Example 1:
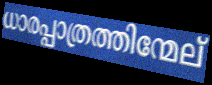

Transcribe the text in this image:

ധാരപ്പാത്രത്തിന്മേല്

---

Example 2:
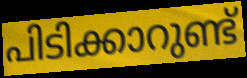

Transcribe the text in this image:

പിടിക്കാറുണ്ട്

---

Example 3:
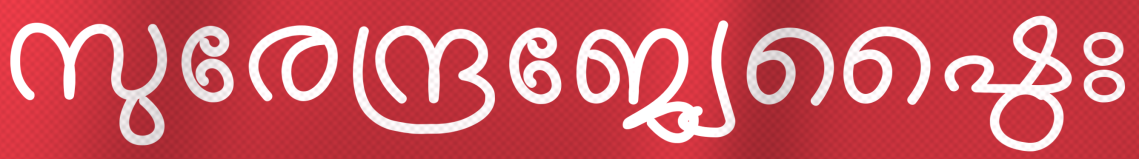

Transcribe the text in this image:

സുരേന്ദ്രജ്യേഷ്ഠൈഃ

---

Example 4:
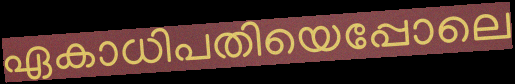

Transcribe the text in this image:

ഏകാധിപതിയെപ്പോലെ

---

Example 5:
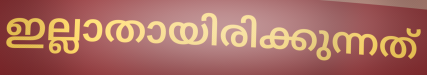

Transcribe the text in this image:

ഇല്ലാതായിരിക്കുന്നത്